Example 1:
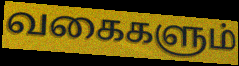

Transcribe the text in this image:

வகைகளும்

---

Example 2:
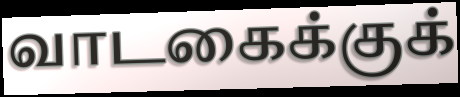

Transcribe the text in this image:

வாடகைக்குக்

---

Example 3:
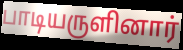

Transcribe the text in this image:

பாடியருளினார்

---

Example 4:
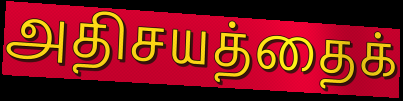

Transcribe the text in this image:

அதிசயத்தைக்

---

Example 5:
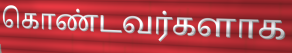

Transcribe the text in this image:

கொண்டவர்களாக